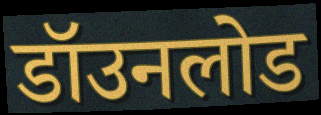
डॉउनलोड